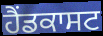
ਹੈਂਡਕਾਸਟ